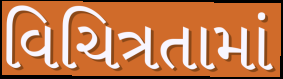
વિચિત્રતામાં